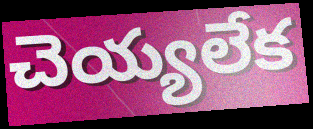
చెయ్యలేక